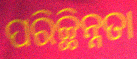
ପରିଚ୍ଛିନ୍ନତା